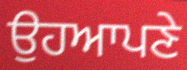
ਉਹਆਪਣੇ